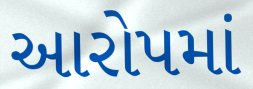
આરોપમાં